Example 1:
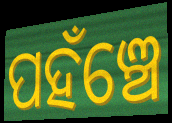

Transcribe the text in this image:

ପହଁଞ୍ଚେ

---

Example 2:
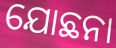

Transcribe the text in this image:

ଯୋଛନା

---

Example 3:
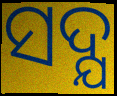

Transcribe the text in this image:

ସଦ୍ଯ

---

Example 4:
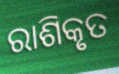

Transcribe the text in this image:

ରାଶିକୃତ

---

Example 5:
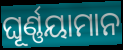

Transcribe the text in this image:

ଘୂର୍ଣ୍ଣୟାମାନ